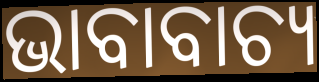
ଭାବାବାଚ୍ୟ